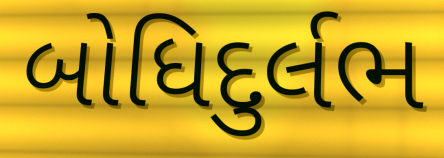
બોધિદુર્લભ